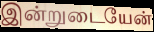
இன்றுடையேன்